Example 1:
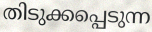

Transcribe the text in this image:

തിടുക്കപ്പെടുന്ന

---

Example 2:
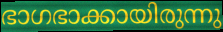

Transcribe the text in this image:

ഭാഗഭാക്കായിരുന്നു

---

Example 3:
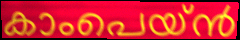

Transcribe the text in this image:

കാംപെയ്ൻ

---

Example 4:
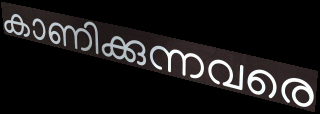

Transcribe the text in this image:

കാണിക്കുന്നവരെ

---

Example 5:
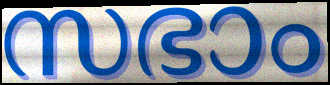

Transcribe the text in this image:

സഭാം